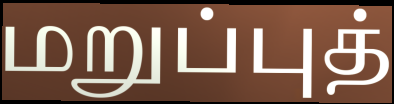
மறுப்புத்